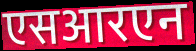
एसआरएन